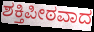
ಶಕ್ತಿಪೀಠವಾದ